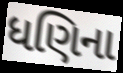
ધણિના